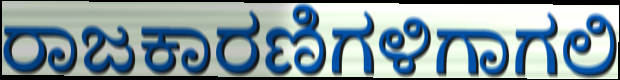
ರಾಜಕಾರಣಿಗಳಿಗಾಗಲಿ